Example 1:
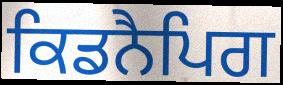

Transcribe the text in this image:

ਕਿਡਨੈਪਿਗ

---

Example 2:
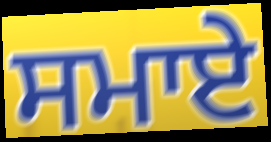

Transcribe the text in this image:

ਸਮਾਏ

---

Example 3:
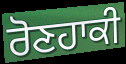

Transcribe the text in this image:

ਰੋਣਹਾਕੀ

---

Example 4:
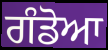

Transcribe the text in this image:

ਗੰਡੋਆ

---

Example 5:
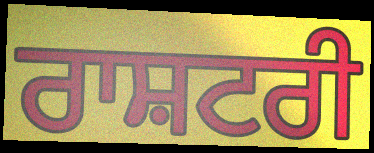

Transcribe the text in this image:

ਰਾਸ਼ਟਰੀ